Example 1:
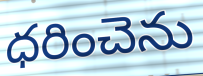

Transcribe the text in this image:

ధరించెను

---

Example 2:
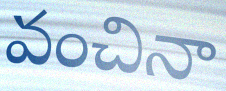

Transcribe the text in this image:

వంచినా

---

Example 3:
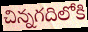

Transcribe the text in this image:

చిన్నగదిలోకి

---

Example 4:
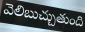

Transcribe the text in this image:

వెలిబుచ్చుతుంది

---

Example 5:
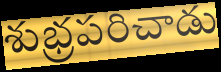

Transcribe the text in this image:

శుభ్రపరిచాడు